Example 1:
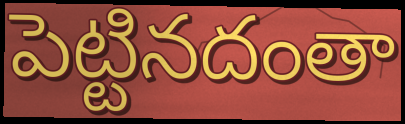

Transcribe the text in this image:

పెట్టినదంతా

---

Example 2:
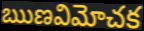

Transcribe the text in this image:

ఋణవిమోచక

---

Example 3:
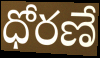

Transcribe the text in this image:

ధోరణే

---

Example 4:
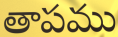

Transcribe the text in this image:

తాపము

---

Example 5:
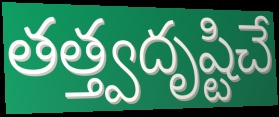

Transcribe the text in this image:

తత్త్వదృష్టిచే